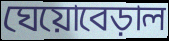
ঘেয়োবেড়াল